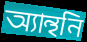
অ্যান্থনি